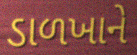
ડાળખાને